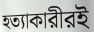
হত্যাকারীরই